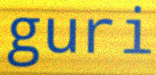
guri